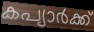
കപ്യാർക്ക്